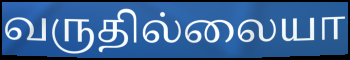
வருதில்லையா